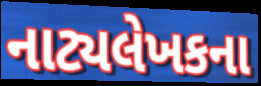
નાટ્યલેખકના